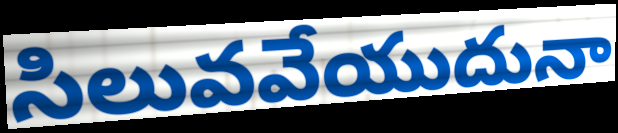
సిలువవేయుదునా